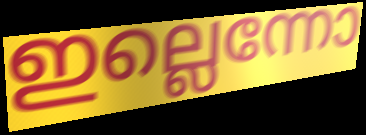
ഇല്ലെന്നോ